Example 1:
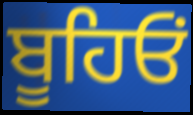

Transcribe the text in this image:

ਬੂਹਿਓਂ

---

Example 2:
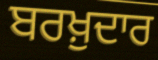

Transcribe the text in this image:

ਬਰਖ਼ੁਦਾਰ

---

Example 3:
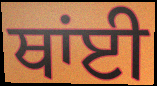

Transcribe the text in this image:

ਥਾਂਈ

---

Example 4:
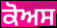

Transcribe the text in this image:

ਕੋਅਸ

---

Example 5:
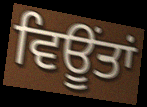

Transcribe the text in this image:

ਵਿਊਂਤਾਂ